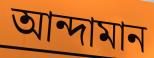
আন্দামান